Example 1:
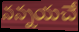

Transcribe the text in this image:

నన్నయచే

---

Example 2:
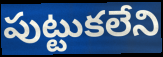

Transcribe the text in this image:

పుట్టుకలేని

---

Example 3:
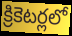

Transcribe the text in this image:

క్రికెటర్లలో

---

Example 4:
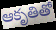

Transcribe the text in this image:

ఆకృతితో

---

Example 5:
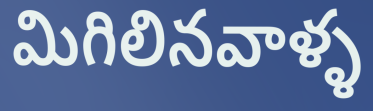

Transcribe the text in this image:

మిగిలినవాళ్ళ